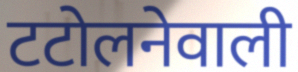
टटोलनेवाली